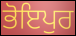
ਭੋਇਪੁਰ